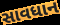
સાવધાન